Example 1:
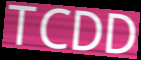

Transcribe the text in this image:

TCDD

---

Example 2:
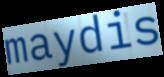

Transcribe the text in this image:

maydis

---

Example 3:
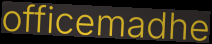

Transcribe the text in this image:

officemadhe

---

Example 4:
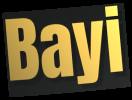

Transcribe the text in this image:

Bayi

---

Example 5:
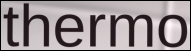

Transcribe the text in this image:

thermo